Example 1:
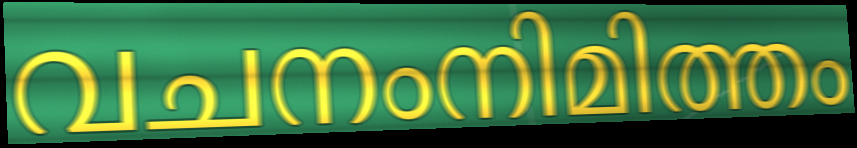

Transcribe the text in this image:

വചനംനിമിത്തം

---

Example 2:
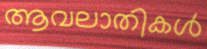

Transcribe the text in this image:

ആവലാതികൾ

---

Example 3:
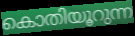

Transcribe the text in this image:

കൊതിയൂറുന്ന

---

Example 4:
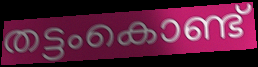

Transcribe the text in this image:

തട്ടംകൊണ്ട്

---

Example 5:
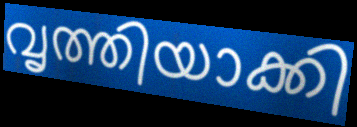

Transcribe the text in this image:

വൃത്തിയാക്കി